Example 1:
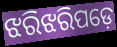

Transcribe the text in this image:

ଝରିଝରିପଡ଼େ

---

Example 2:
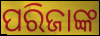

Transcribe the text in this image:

ପରିଜାଙ୍କ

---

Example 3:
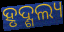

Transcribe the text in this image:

ହୃଦ୍ଶଲ୍ୟ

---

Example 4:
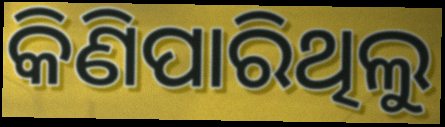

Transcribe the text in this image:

କିଣିପାରିଥିଲୁ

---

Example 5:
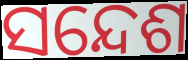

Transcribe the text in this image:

ସନ୍ଦେଶ